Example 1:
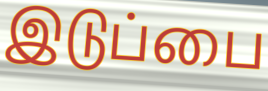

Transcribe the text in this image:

இடுப்பை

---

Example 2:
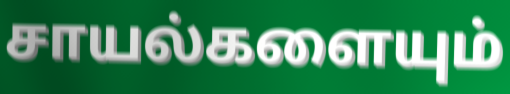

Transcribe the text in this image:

சாயல்களையும்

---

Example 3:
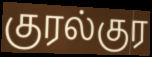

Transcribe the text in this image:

குரல்குர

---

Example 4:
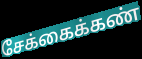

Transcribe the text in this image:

சேக்கைக்கண்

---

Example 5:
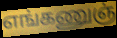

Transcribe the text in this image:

எங்கணுஞ்